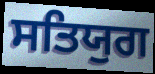
ਸਤਿਯੁਗ